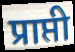
प्राप्ती